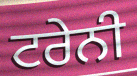
ਟਰੇਨੀ